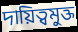
দায়িত্বমুক্ত